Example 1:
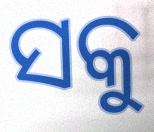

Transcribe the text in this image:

ସକୁ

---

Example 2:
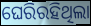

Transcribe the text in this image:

ଘେରିରହିଥିଲା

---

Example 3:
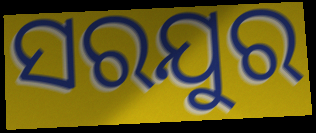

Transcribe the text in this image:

ସରଯୁର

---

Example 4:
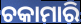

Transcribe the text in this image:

ଚକାମାରି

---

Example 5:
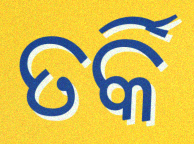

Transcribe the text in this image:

ତର୍କି